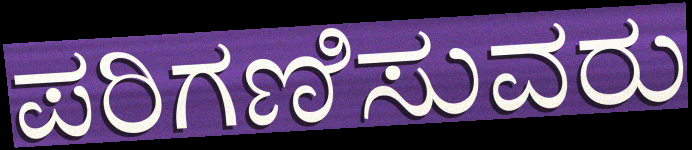
ಪರಿಗಣಿಸುವರು